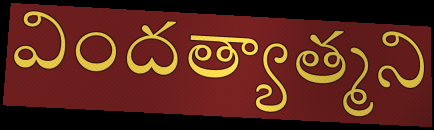
విందత్యాత్మని